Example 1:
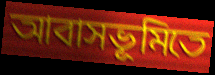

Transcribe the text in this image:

আবাসভূমিতে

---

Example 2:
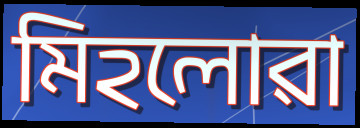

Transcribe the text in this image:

মিহলোৱা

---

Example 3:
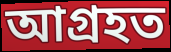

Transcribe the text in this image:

আগ্ৰহত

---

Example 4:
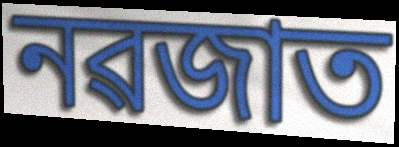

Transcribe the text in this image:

নৱজাত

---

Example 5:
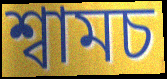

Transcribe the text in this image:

শ্বামচ